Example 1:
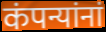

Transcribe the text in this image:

कंपन्यांनां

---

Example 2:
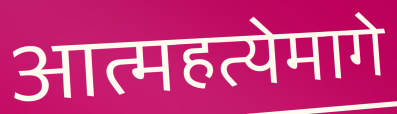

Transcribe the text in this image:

आत्महत्येमागे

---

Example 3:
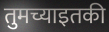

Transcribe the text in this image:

तुमच्याइतकी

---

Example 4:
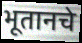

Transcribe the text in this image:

भूतानचे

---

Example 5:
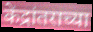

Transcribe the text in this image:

केंद्रांतराच्या